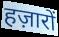
हज़ारों